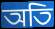
অতি